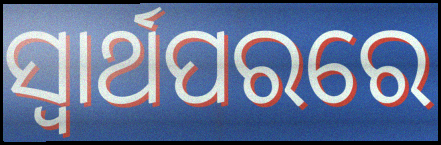
ସ୍ୱାର୍ଥପରରେ